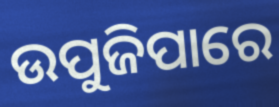
ଉପୁଜିପାରେ